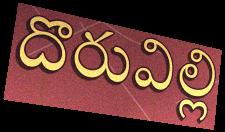
దొరువిల్లి